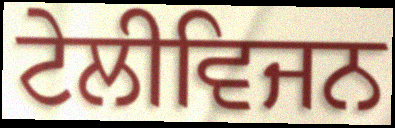
ਟੇਲੀਵਿਜਨ